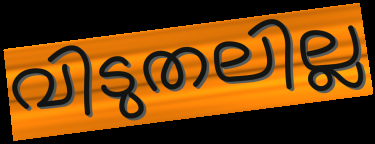
വിടുതലില്ല